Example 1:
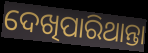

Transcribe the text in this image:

ଦେଖିପାରିଥାନ୍ତା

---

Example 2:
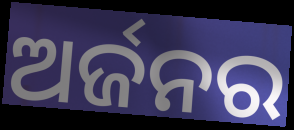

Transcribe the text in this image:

ଅର୍ଜନର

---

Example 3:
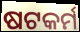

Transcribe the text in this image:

ଷଟକର୍ମ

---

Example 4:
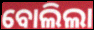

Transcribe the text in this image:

ବୋଲିଲା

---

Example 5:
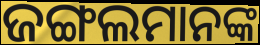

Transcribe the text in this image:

ଜଙ୍ଗଲମାନଙ୍କ